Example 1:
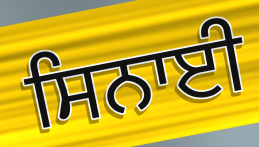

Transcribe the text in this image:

ਸਿਨਾਈ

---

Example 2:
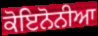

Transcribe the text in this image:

ਕੋਇਨੋਨੀਆ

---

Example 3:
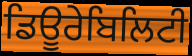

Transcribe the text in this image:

ਡਿਊਰੇਬਿਲਿਟੀ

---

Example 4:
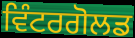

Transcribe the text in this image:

ਵਿੰਟਰਗੋਲਡ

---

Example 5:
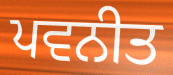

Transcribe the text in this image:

ਪਵਨੀਤ